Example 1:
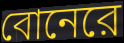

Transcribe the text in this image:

বোনেরে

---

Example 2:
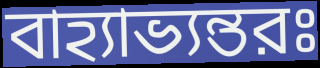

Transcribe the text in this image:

বাহ্যাভ্যন্তরঃ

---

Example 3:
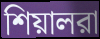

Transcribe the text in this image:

শিয়ালরা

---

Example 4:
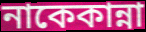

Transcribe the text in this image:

নাকেকান্না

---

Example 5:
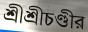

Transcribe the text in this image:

শ্রীশ্রীচণ্ডীর